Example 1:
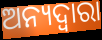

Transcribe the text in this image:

ଅନ୍ୟଦ୍ୱାରା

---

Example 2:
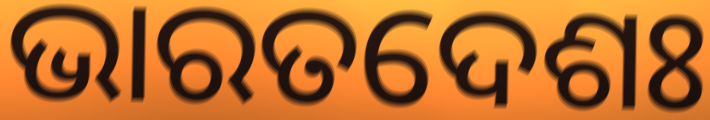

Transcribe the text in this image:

ଭାରତଦେଶଃ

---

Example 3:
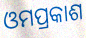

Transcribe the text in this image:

ଓମପ୍ରକାଶ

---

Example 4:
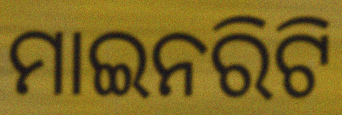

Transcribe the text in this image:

ମାଇନରିଟି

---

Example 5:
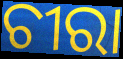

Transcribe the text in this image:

ଚୀରା